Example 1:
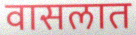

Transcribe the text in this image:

वासलात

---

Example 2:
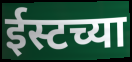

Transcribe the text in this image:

ईस्टच्या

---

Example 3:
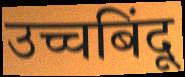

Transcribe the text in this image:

उच्चबिंदू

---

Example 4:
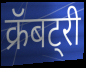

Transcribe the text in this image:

क्रॅबट्री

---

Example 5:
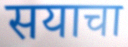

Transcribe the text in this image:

सयाचा